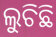
ଲୁଚିଛି